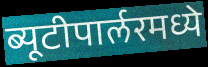
ब्यूटीपार्लरमध्ये